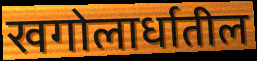
खगोलार्धातील